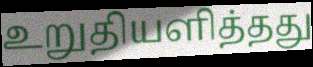
உறுதியளித்தது